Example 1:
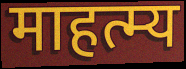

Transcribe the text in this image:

माहत्म्य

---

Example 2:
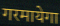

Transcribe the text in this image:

गरमायेगा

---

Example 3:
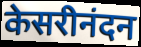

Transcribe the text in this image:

केसरीनंदन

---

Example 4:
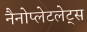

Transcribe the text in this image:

नैनोप्लेटलेट्स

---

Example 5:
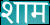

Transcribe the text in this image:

शाम